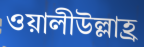
ওয়ালীউল্লাহ্র